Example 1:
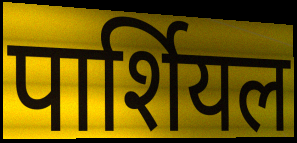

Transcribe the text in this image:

पार्शियल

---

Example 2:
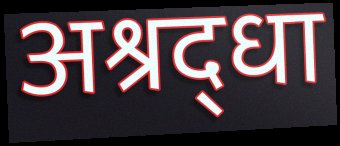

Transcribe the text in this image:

अश्रद्धा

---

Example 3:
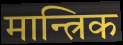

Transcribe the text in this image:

मान्त्रिक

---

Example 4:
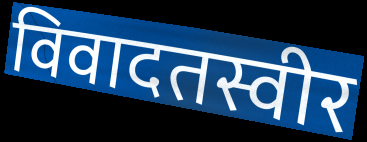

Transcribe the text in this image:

विवादतस्वीर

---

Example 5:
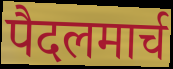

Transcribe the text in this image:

पैदलमार्च